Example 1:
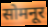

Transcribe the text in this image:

सोमनूर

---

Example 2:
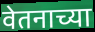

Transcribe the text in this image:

वेतनाच्या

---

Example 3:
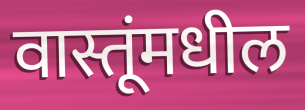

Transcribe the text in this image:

वास्तूंमधील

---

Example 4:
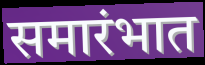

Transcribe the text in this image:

समारंभात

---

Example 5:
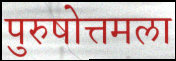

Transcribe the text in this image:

पुरुषोत्तमला